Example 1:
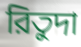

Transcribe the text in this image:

রিতুদা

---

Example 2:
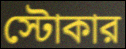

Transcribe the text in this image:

স্টোকার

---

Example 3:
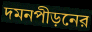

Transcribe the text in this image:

দমনপীড়নের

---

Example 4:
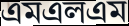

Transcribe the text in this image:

এমএলএম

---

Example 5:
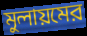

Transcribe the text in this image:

মুলায়মের